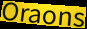
Oraons